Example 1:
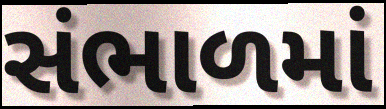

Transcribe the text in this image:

સંભાળમાં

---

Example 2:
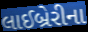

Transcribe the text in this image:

લાઈબ્રેરીના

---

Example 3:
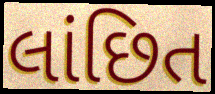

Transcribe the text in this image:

લાંછિત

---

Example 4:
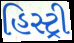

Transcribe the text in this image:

હિસ્ટ્રી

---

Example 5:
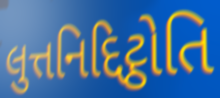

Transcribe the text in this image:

લુત્તનિદ્દિટ્ઠોતિ